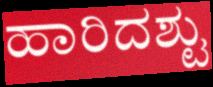
ಹಾರಿದಶ್ಟು